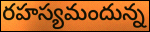
రహస్యమందున్న